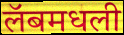
लॅबमधली